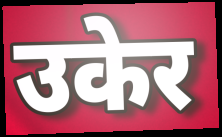
उकेर